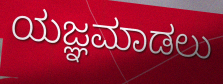
ಯಜ್ಞಮಾಡಲು